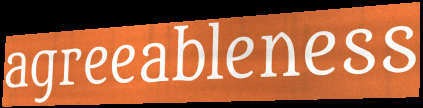
agreeableness